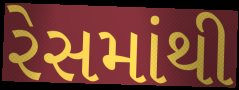
રેસમાંથી